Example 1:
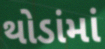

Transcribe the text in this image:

થોડાંમાં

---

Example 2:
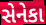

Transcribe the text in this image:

સેનેકા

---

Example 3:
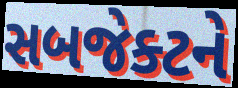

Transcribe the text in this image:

સબજેક્ટને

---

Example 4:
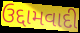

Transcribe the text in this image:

ઉદ્દામવાદી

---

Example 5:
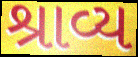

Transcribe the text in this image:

શ્રાવ્ય